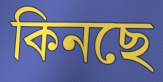
কিনছে